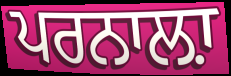
ਪਰਨਾਲ਼ਾ